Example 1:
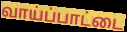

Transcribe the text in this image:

வாய்ப்பாட்டை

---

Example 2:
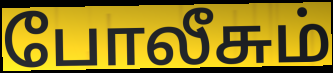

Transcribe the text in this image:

போலீசும்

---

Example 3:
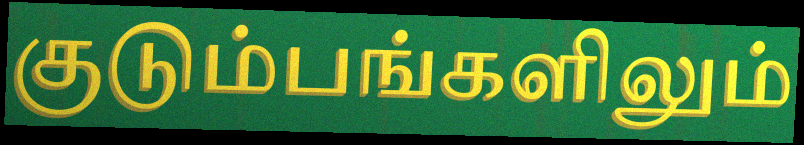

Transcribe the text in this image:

குடும்பங்களிலும்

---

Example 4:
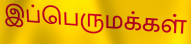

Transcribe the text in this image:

இப்பெருமக்கள்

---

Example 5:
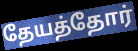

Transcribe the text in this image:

தேயத்தோர்